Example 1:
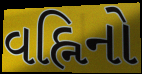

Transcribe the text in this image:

વહ્નિનો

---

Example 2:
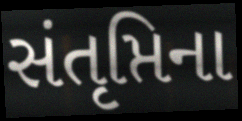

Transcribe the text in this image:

સંતૃપ્તિના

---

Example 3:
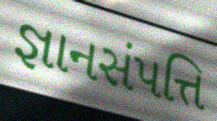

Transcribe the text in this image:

જ્ઞાનસંપત્તિ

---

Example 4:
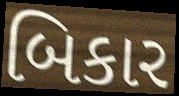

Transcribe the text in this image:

બિકાર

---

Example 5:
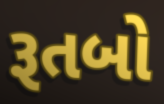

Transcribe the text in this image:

રૂતબો